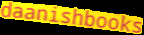
daanishbooks